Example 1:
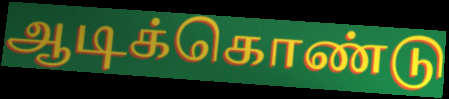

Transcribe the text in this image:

ஆடிக்கொண்டு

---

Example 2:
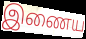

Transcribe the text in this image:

இணைய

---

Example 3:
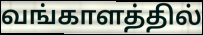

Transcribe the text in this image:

வங்காளத்தில்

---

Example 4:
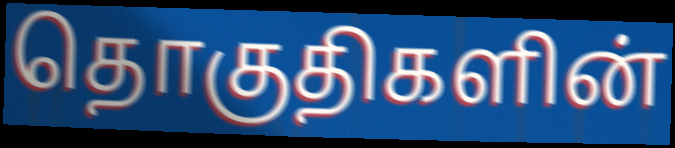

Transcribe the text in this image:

தொகுதிகளின்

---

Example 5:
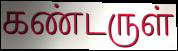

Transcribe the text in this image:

கண்டருள்